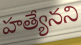
హత్యేనని